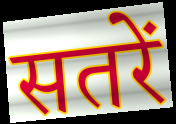
सतरें